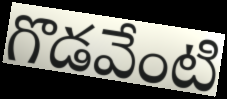
గొడవేంటి